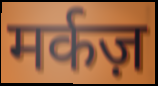
मर्कज़